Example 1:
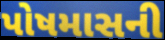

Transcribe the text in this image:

પોષમાસની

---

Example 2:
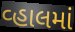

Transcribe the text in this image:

વ્હાલમાં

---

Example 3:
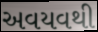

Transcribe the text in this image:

અવયવથી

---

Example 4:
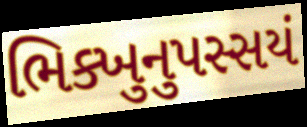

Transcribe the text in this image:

ભિક્ખુનુપસ્સયં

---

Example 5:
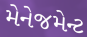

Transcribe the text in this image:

મેનેજમેન્ટ